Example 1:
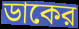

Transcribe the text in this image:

ডাকের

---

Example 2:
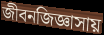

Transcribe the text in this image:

জীবনজিজ্ঞাসায়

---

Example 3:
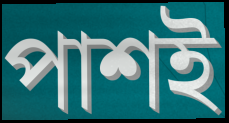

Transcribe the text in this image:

পাশই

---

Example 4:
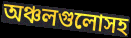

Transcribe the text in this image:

অঞ্চলগুলোসহ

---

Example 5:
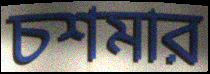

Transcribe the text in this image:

চশমার